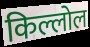
किल्लोल